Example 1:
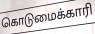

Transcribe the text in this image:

கொடுமைக்காரி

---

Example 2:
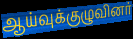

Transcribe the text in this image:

ஆய்வுக்குழுவினர்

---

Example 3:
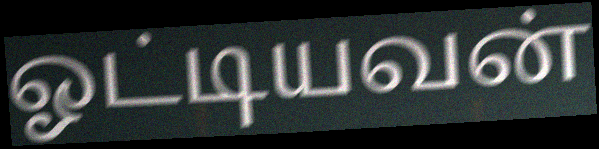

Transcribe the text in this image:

ஓட்டியவன்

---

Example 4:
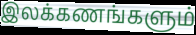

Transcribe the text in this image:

இலக்கணங்களும்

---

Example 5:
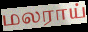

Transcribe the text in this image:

மலராய்